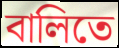
বালিতে